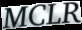
MCLR